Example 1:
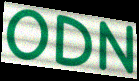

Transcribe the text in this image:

ODN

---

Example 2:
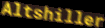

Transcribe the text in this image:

Altshiller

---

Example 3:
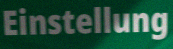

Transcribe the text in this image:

Einstellung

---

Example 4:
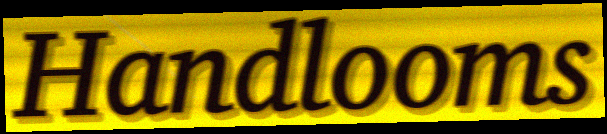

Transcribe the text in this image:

Handlooms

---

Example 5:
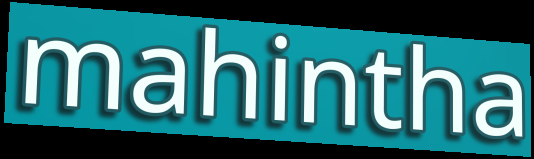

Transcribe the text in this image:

mahintha